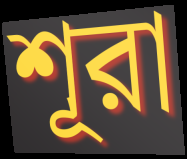
শূরা